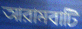
আরামবাটি